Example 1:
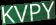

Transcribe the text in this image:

KVPY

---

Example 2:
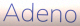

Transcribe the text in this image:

Adeno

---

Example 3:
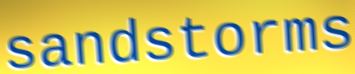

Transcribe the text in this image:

sandstorms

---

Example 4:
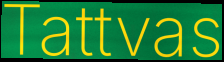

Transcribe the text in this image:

Tattvas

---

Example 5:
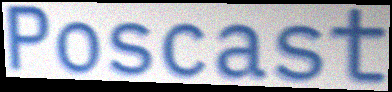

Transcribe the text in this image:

Poscast